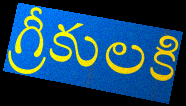
గ్రీకులకి